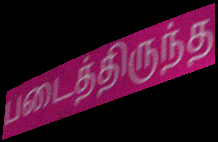
படைத்திருந்த